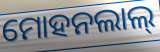
ମୋହନଲାଲ୍